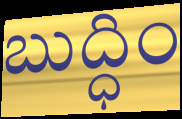
బుద్ధిం